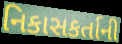
નિકાસકર્તાની